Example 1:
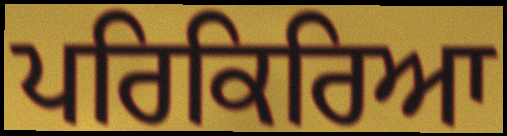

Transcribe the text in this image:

ਪਰਿਕਿਰਿਆ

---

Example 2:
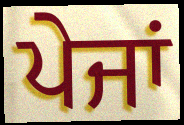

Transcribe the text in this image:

ਪੇਜਾਂ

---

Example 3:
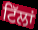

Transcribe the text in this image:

ਟਿੱਲਾਂ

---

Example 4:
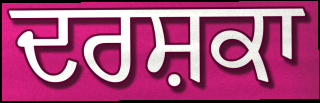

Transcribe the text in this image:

ਦਰਸ਼ਕਾ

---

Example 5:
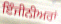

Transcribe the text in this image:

ਇੰਜੀਨੀਅਰਾਂ